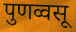
पुणव्वसू